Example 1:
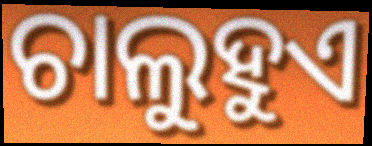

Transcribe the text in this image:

ଚାଲୁହୁଏ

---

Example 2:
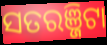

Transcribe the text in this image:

ସତରଞ୍ଜିଟା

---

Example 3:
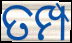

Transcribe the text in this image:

ତମ୍ପ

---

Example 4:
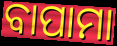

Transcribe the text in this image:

ବାପାମା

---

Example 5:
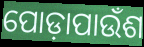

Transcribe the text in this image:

ପୋଡ଼ାପାଉଁଶ